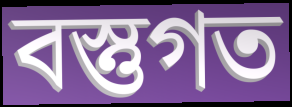
বস্তুগত